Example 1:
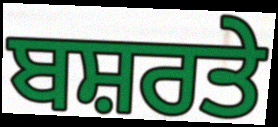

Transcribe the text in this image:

ਬਸ਼ਰਤੇ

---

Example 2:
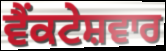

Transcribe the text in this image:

ਵੈਂਕਟੇਸ਼ਵਾਰ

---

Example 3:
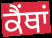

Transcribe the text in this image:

ਕੈਂਥਾਂ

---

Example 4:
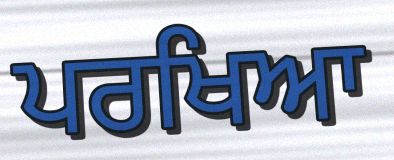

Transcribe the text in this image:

ਪਰਖਿਆ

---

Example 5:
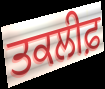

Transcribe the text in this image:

ਤਕਲੀਫ਼